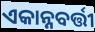
ଏକାନ୍ନବର୍ତ୍ତୀ